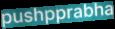
pushpprabha